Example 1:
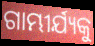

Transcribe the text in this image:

ଗାମ୍ଭୀର୍ଯ୍ୟକୁ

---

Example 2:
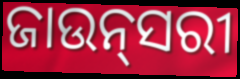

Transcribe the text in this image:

ଜାଉନ୍‌ସରୀ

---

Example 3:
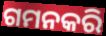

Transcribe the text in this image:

ଗମନକରି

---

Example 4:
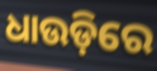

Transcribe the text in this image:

ଧାଉଡ଼ିରେ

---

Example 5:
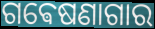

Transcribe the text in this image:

ଗଵେଷଣାଗାର